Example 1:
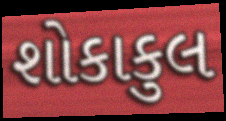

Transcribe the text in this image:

શોકાકુલ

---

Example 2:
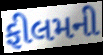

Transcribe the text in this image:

ફીલમની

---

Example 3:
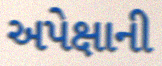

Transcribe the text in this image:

અપેક્ષાની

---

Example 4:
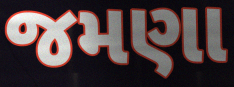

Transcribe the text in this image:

જમણા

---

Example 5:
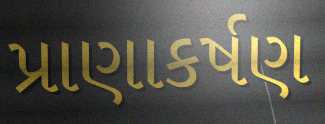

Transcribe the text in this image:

પ્રાણાકર્ષણ